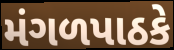
મંગળપાઠકે